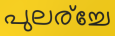
പുലര്ച്ചേ